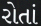
રોતાં